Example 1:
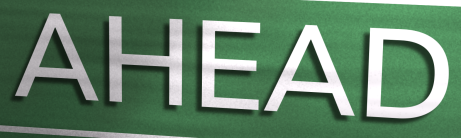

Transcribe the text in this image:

AHEAD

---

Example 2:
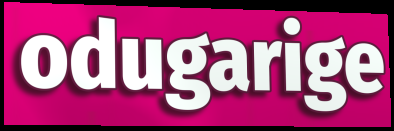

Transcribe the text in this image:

odugarige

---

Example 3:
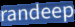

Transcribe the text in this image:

randeep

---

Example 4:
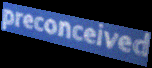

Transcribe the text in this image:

preconceived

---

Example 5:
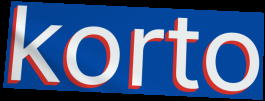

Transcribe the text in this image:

korto